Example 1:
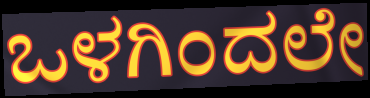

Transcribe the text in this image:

ಒಳಗಿಂದಲೇ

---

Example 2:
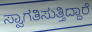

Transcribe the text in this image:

ಸ್ವಾಗತಿಸುತ್ತಿದ್ದಾರೆ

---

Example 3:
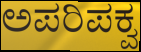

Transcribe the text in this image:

ಅಪರಿಪಕ್ವ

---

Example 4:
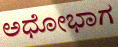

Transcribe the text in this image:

ಅಧೋಭಾಗ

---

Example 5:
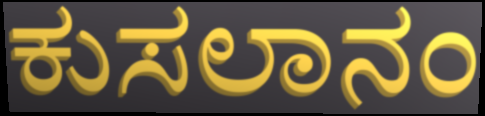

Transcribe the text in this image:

ಕುಸಲಾನಂ